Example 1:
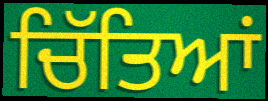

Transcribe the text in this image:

ਚਿੱਤਿਆਂ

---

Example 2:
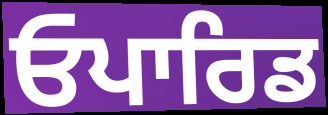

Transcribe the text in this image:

ਓਪਾਰਿਡ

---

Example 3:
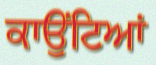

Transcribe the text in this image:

ਕਾਉਂਟਿਆਂ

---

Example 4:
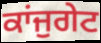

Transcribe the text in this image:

ਕਾਂਜੁਗੇਟ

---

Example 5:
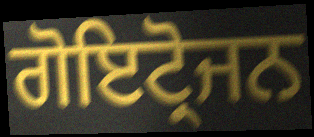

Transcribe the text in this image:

ਗੋਇਟ੍ਰੋਜਨ